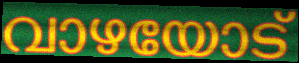
വാഴയോട്